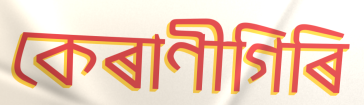
কেৰাণীগিৰি